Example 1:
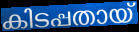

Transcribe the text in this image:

കിടപ്പതായ്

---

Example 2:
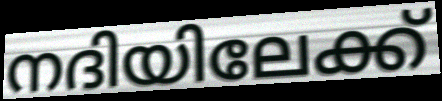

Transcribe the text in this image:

നദിയിലേക്ക്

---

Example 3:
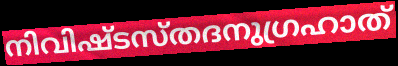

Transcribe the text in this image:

നിവിഷ്ടസ്തദനുഗ്രഹാത്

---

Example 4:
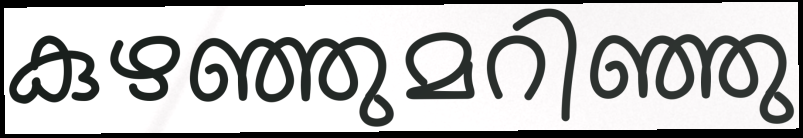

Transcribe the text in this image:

കുഴഞ്ഞുമറിഞ്ഞു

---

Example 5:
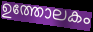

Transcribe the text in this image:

ഉത്തോലകം